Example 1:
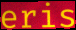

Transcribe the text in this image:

eris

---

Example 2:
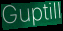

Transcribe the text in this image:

Guptill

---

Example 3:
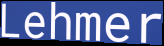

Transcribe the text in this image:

Lehmer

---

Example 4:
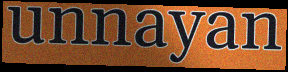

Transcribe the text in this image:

unnayan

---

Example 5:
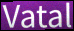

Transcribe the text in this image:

Vatal